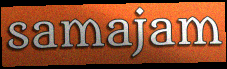
samajam